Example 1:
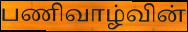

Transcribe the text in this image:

பணிவாழ்வின்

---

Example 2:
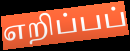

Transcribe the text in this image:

எறிப்பப்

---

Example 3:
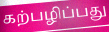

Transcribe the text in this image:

கற்பழிப்பது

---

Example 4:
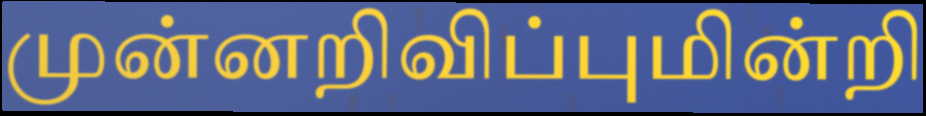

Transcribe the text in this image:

முன்னறிவிப்புமின்றி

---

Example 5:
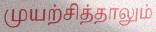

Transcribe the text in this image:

முயற்சித்தாலும்